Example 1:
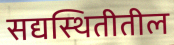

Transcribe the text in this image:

सद्यस्थितीतील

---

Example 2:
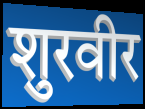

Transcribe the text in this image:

शुरवीर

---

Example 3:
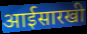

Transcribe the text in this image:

आईसारखी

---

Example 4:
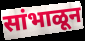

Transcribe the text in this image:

सांभाळून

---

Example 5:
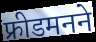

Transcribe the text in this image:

फ्रीडमनने